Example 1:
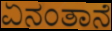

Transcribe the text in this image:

ಏನಂತಾನೆ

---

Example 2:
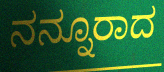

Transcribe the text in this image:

ನನ್ನೂರಾದ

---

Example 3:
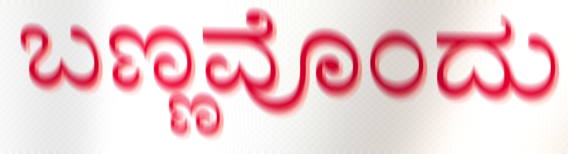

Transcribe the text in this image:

ಬಣ್ಣವೊಂದು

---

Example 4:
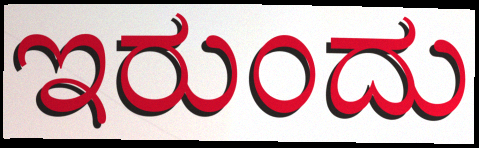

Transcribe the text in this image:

ಇರುಂದು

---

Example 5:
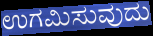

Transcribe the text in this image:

ಉಗಮಿಸುವುದು